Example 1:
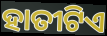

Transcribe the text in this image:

ହାତୀଟିଏ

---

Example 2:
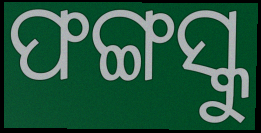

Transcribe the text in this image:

ଫଙ୍ଗସ୍କୁ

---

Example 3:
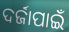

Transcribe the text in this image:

ଦର୍ଜାପାଇଁ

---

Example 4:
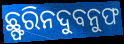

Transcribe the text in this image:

ଛ୍ଫରିନଦୁବନୁଫ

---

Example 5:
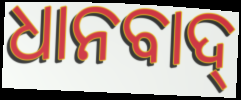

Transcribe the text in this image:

ଧାନବାଦ୍